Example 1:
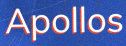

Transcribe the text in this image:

Apollos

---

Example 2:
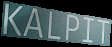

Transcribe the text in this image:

KALPIT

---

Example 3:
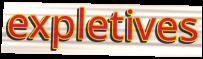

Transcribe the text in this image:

expletives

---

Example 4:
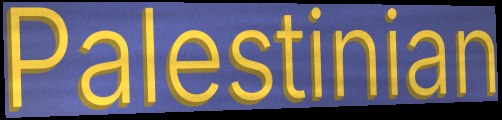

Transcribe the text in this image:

Palestinian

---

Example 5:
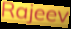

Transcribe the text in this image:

Rajeev